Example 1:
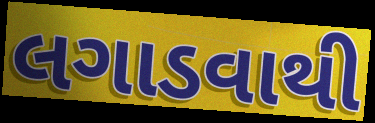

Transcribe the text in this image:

લગાડવાથી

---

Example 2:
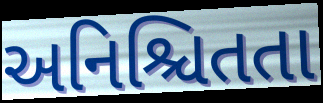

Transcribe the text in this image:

અનિશ્ચિતતા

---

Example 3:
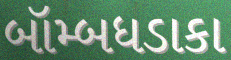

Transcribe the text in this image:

બૉમ્બધડાકા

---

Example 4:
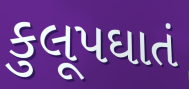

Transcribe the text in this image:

કુલૂપઘાતં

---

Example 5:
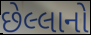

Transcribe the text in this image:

છેલ્લાનો